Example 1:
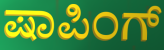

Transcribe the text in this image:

ಷಾಪಿಂಗ್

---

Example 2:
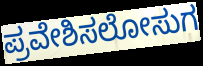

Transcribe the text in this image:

ಪ್ರವೇಶಿಸಲೋಸುಗ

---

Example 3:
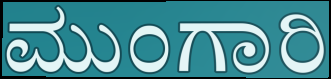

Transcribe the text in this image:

ಮುಂಗಾರಿ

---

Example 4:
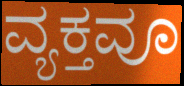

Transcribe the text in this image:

ವ್ಯಕ್ತವೂ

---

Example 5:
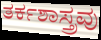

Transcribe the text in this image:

ತರ್ಕಶಾಸ್ತ್ರವು